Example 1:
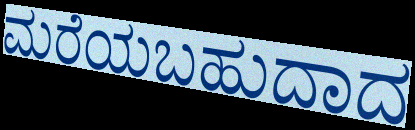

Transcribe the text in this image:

ಮರೆಯಬಹುದಾದ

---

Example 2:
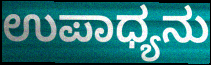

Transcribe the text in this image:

ಉಪಾಧ್ಯನು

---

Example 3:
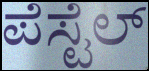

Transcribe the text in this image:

ಪೆಸ್ಟೆಲ್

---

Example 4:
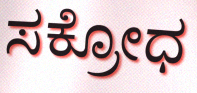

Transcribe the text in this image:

ಸಕ್ರೋಧ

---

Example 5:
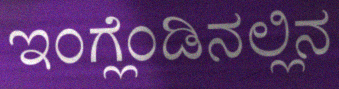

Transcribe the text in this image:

ಇಂಗ್ಲೆಂಡಿನಲ್ಲಿನ